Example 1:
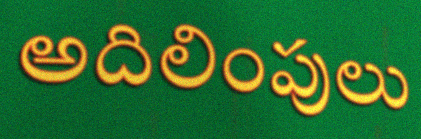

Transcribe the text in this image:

అదిలింపులు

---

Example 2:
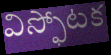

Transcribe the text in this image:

విస్ఫోటక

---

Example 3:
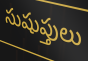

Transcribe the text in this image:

సుషుప్తులు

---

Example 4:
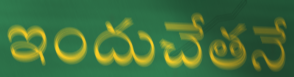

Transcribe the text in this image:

ఇందుచేతనే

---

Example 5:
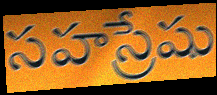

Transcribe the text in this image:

సహస్రేషు